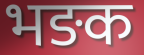
भङक